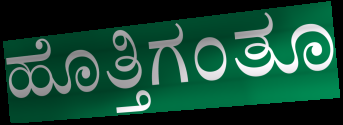
ಹೊತ್ತಿಗಂತೂ